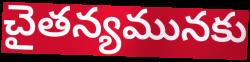
చైతన్యమునకు